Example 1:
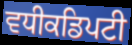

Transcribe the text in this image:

ਵਧੀਕਡਿਪਟੀ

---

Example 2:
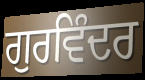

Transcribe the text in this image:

ਗੁਰਵਿੰਦਰ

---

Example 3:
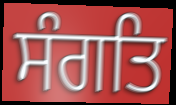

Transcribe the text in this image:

ਸੰਗਤਿ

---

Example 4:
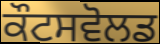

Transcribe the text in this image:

ਕੌਟਸਵੋਲਡ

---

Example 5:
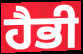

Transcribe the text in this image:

ਹੈਭੀ